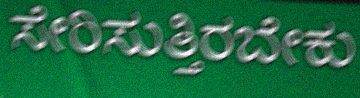
ಸೇರಿಸುತ್ತಿರಬೇಕು